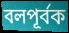
বলপূর্বক